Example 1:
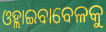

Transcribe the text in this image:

ଓହ୍ଲାଇବାବେଳକୁ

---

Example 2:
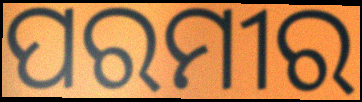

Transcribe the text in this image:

ପରମୀର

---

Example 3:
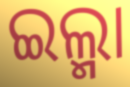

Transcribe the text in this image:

ଇଲ୍ମା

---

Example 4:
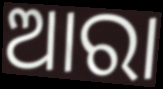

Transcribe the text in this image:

ଆରା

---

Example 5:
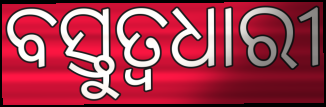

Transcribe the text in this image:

ବସ୍ତୁତ୍ୱଧାରୀ